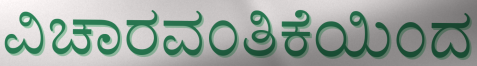
ವಿಚಾರವಂತಿಕೆಯಿಂದ